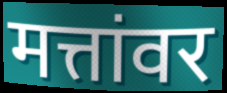
मत्तांवर